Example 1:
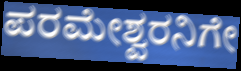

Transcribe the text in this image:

ಪರಮೇಶ್ವರನಿಗೇ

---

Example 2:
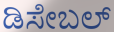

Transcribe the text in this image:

ಡಿಸೇಬಲ್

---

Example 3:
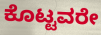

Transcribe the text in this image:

ಕೊಟ್ಟವರೇ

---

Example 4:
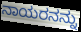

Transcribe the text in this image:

ನಾಯರನನ್ನು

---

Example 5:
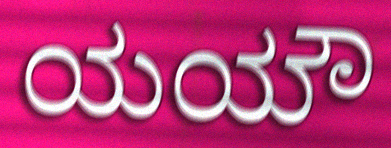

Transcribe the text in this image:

ಯಯೌ